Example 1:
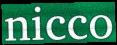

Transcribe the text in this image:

nicco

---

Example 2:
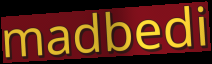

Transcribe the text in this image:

madbedi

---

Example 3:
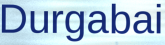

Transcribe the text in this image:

Durgabai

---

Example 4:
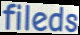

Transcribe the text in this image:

fileds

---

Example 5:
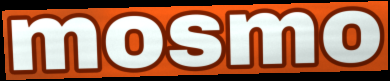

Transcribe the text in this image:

mosmo